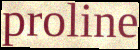
proline